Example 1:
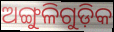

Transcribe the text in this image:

ଅଙ୍ଗୁଳିଗୁଡ଼ିକ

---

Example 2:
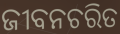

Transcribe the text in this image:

ଜୀବନଚରିତ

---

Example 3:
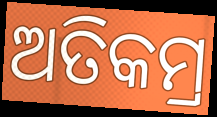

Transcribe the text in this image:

ଅତିକମ୍ର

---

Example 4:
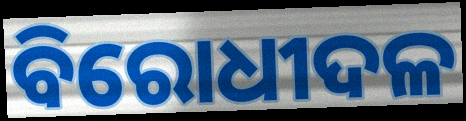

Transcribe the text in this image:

ବିରୋଧୀଦଳ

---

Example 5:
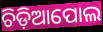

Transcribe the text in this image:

ଚିଡ଼ିଆପୋଲ